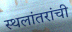
स्थलांतरांची